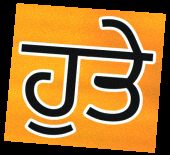
ਹੁਤੇ